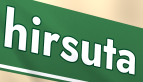
hirsuta